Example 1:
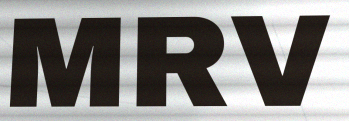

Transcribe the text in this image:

MRV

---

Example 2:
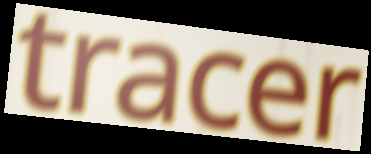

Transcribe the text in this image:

tracer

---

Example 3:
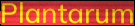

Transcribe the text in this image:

Plantarum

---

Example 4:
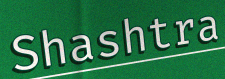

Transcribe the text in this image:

Shashtra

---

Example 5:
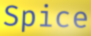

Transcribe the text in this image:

Spice